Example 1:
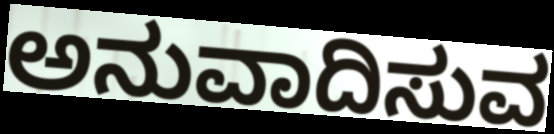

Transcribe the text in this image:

ಅನುವಾದಿಸುವ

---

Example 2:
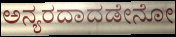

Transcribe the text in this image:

ಅನ್ಯರದಾದಡೇನೋ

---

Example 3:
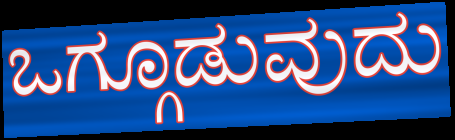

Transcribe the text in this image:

ಒಗ್ಗೂಡುವುದು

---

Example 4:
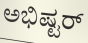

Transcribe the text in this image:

ಅಭಿಷ್ಟರ್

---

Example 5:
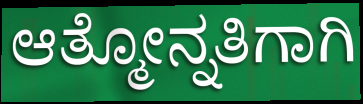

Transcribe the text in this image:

ಆತ್ಮೋನ್ನತಿಗಾಗಿ